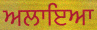
ਅਲਾਇਆ